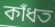
কাঁধত